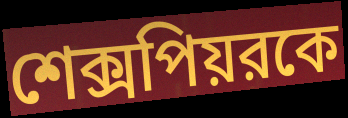
শেক্সপিয়রকে